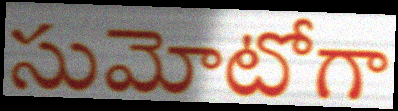
సుమోటోగా